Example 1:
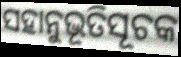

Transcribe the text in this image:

ସହାନୁଭୂତିସୂଚକ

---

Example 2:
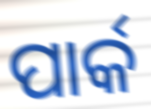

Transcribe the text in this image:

ପାର୍କ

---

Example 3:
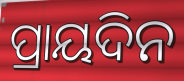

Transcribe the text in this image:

ପ୍ରାୟଦିନ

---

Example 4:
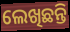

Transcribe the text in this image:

ଲେଖିଛନ୍ତି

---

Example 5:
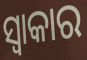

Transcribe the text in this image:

ସ୍ୱାକାର